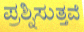
ಪ್ರಶ್ನಿಸುತ್ತವೆ